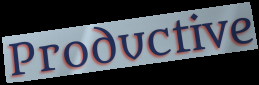
Productive